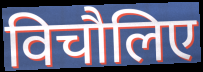
विचौलिए